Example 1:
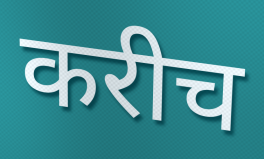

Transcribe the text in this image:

करीच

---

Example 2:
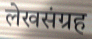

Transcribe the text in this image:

लेखसंग्रह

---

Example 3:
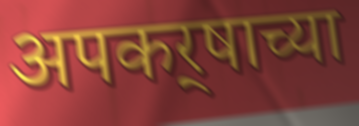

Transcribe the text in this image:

अपकर्षाच्या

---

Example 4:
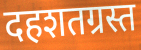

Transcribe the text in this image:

दहशतग्रस्त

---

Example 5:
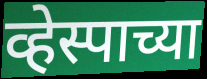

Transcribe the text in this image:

व्हेस्पाच्या